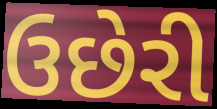
ઉછેરી